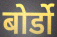
बोर्डो